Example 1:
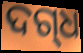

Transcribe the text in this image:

ଦଗ୍‍ଧ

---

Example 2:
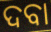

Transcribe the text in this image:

ଦବା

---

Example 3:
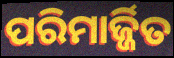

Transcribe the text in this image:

ପରିମାର୍ଜ୍ଜିତ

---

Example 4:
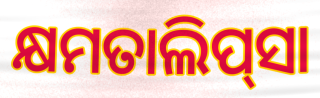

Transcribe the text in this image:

କ୍ଷମତାଲିପ୍‍ସା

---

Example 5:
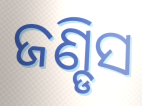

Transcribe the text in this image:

ଜଣ୍ଡିସ